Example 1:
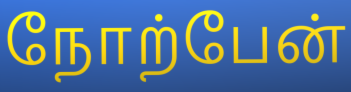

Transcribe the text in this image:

நோற்பேன்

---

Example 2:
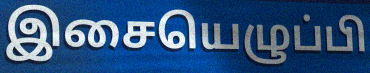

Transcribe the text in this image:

இசையெழுப்பி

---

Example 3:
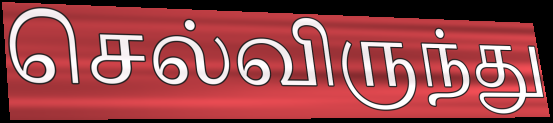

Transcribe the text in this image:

செல்விருந்து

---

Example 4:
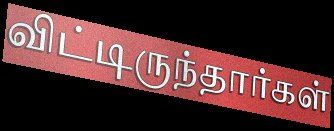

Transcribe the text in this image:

விட்டிருந்தார்கள்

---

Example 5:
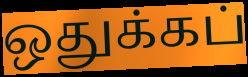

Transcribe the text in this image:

ஒதுக்கப்